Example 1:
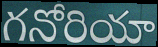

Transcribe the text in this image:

గనోరియా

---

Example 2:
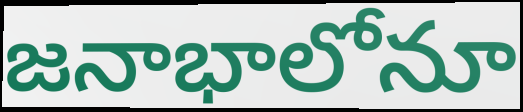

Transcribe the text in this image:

జనాభాలోనూ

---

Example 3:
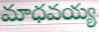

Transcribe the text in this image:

మాధవయ్య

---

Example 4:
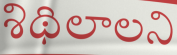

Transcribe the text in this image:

శిథిలాలని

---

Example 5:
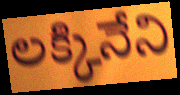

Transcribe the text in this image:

లక్కినేని